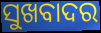
ସୁଖବାଦର